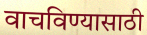
वाचविण्यासाठी